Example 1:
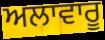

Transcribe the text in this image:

ਅਲਾਵਾਰੂ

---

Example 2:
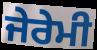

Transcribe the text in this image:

ਜੇਰੇਮੀ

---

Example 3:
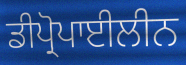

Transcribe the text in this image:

ਡੀਪ੍ਰੋਪਾਈਲੀਨ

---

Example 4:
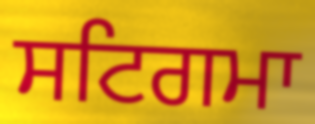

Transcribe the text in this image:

ਸਟਿਗਮਾ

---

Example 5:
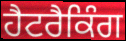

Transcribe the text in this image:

ਹੈਟਰੈਕਿੰਗ